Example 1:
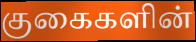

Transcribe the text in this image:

குகைகளின்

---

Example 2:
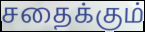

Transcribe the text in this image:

சதைக்கும்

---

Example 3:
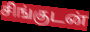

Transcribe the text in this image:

சிங்குடன்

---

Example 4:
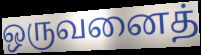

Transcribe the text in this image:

ஒருவனைத்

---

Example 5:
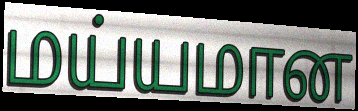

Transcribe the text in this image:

மய்யமான